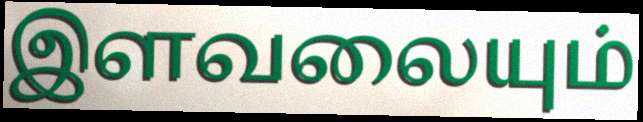
இளவலையும்